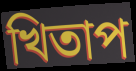
খিতাপ